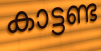
കാട്ടണ്ട